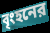
বৃংহনের